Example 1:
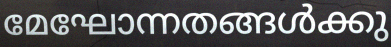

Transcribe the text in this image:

മേഘോന്നതങ്ങൾക്കു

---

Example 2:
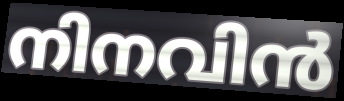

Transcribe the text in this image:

നിനവിൻ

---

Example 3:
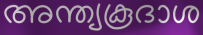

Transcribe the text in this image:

അന്ത്യകൂദാശ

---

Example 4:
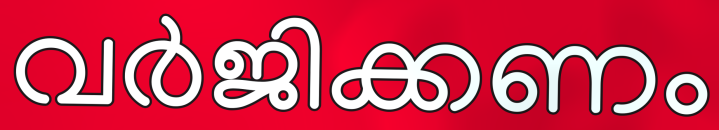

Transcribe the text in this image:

വർജിക്കണം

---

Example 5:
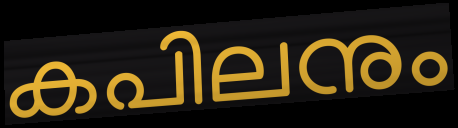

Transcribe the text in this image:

കപിലനും